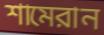
শামেরান